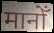
मानोँ